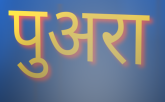
पुअरा